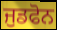
ਜੁਡਫੋਨ